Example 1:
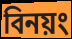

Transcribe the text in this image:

বিনয়ং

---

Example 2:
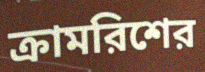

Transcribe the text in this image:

ক্রামরিশের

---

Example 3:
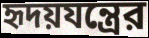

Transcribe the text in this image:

হৃদয়যন্ত্রের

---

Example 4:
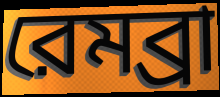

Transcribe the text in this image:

রেমব্রা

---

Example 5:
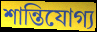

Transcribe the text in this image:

শান্তিযোগ্য